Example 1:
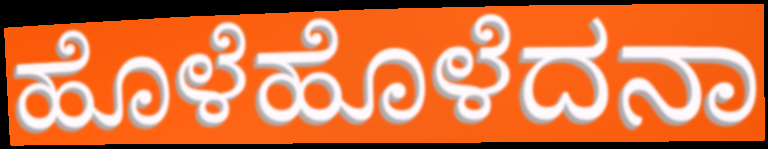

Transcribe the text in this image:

ಹೊಳೆಹೊಳೆದನಾ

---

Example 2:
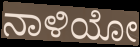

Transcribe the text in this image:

ನಾಳಿಯೋ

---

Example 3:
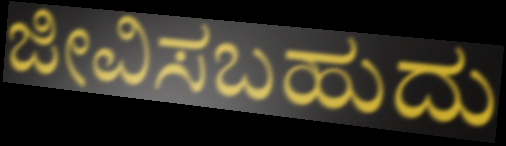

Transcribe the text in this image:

ಜೀವಿಸಬಹುದು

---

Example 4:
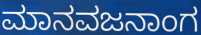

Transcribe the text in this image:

ಮಾನವಜನಾಂಗ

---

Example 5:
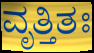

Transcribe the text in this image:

ವೃತ್ತಿತಃ